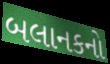
બલાનકનો